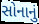
સોનાનું